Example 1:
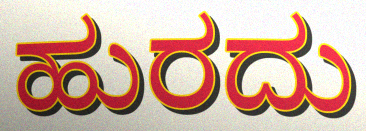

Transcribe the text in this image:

ಹುರದು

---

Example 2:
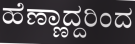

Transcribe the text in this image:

ಹೆಣ್ಣಾದ್ದರಿಂದ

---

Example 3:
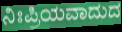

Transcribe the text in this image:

ನಿಃಪ್ರಿಯವಾದುದ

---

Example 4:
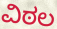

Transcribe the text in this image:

ವಿಠಲ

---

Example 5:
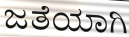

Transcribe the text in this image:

ಜತೆಯಾಗಿ